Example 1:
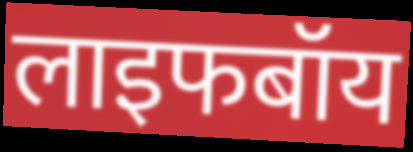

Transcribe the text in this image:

लाइफबॉय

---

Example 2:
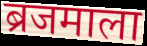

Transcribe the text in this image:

ब्रजमाला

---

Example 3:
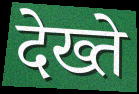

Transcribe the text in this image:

देख्ते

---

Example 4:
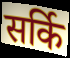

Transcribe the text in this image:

सर्कि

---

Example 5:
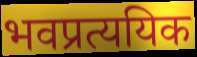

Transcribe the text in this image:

भवप्रत्ययिक